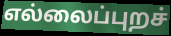
எல்லைப்புறச்